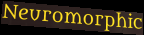
Neuromorphic